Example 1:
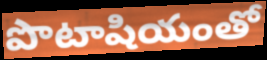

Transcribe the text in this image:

పొటాషియంతో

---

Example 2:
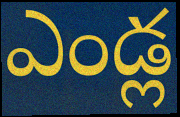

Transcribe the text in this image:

ఎండ్ల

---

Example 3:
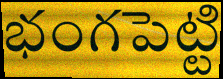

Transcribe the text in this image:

భంగపెట్టి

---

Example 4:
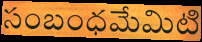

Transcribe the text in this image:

సంబంధమేమిటి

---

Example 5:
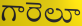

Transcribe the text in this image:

గారెలూ